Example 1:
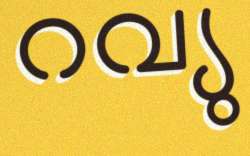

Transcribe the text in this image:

റവ്യു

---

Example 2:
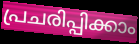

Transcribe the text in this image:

പ്രചരിപ്പിക്കാം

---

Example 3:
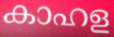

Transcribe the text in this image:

കാഹള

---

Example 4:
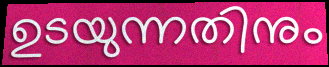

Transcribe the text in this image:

ഉടയുന്നതിനും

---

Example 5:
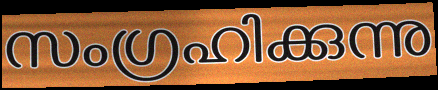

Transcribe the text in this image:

സംഗ്രഹിക്കുന്നു